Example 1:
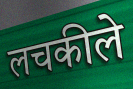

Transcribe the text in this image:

लचकीले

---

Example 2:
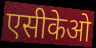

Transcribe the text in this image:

एसीकेओ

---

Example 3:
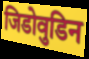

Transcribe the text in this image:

जिडोवुडिन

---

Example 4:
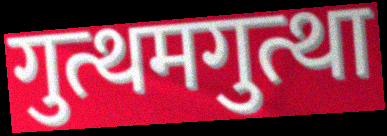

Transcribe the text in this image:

गुत्थमगुत्था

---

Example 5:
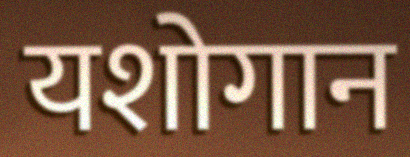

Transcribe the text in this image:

यशोगान